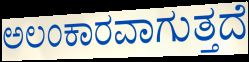
ಅಲಂಕಾರವಾಗುತ್ತದೆ